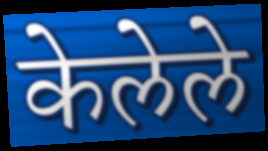
केलेले